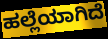
ಹಲ್ಲೆಯಾಗಿದೆ